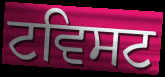
ਟਵਿਸਟ